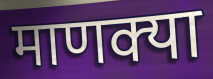
माणक्या